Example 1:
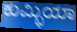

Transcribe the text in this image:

ಕುಮ್ಭಿಯಾ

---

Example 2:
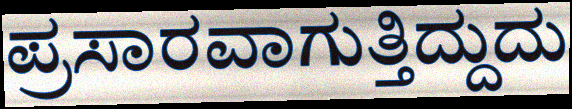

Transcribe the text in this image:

ಪ್ರಸಾರವಾಗುತ್ತಿದ್ದುದು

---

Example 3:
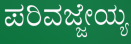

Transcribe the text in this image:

ಪರಿವಜ್ಜೇಯ್ಯ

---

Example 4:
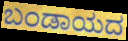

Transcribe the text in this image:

ಬಂಡಾಯದ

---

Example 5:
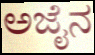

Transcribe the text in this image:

ಅಜೈನ